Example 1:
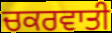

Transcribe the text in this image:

ਚਕਰਵਾਤੀ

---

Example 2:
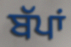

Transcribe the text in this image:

ਬੱਪਾਂ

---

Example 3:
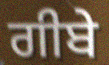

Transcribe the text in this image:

ਗੀਬੇ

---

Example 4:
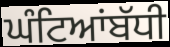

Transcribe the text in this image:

ਘੰਟਿਆਂਬੱਧੀ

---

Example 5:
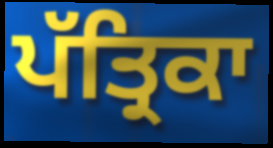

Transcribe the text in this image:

ਪੱਤ੍ਰਿਕਾ